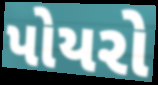
પોયરો